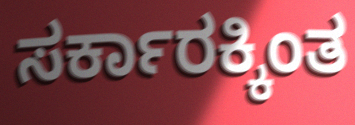
ಸರ್ಕಾರಕ್ಕಿಂತ